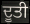
ਦੂਤੀ